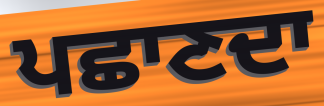
ਪਛਾਣਦਾ